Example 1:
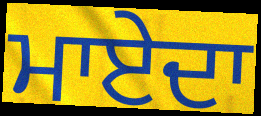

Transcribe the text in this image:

ਮਾਏਦਾ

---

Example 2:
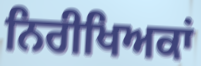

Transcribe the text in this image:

ਨਿਰੀਖਿਅਕਾਂ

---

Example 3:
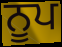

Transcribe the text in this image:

ਨੂਪ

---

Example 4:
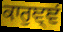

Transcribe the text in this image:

ਕਾਰੁਞ੍ਞਂ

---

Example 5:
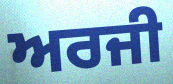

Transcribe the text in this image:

ਅਰਜੀ